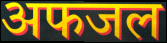
अफजल